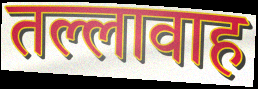
तल्लावाह